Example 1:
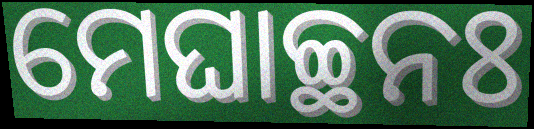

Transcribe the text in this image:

ମେଘାଚ୍ଛନଃ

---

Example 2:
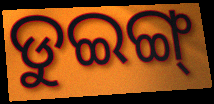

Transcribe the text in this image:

ଡୁଇଙ୍ଗ୍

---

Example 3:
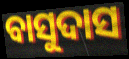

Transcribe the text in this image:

ବାସୁଦାସ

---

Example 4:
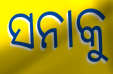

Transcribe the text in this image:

ସନାକୁ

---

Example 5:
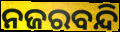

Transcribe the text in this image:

ନଜରବନ୍ଦି